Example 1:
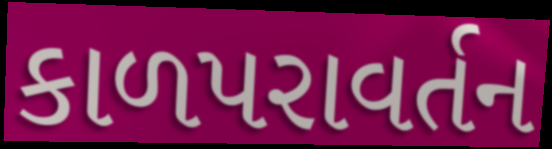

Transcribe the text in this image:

કાળપરાવર્તન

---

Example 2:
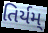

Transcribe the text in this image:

તિર્યમ્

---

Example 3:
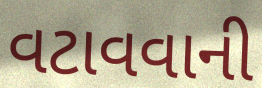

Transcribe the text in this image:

વટાવવાની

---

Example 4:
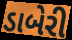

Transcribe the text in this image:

ડાબેરી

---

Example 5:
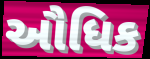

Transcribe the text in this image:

ઔધિક